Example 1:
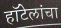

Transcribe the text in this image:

हॉटेलांचा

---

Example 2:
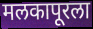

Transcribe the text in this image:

मलकापूरला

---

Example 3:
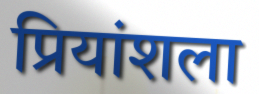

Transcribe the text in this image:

प्रियांशला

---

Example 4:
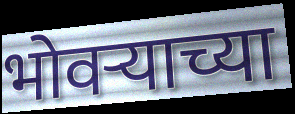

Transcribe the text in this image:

भोवऱ्याच्या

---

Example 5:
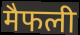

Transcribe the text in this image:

मैफली